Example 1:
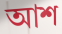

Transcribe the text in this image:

আশ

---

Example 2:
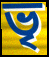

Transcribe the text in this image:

ভৃ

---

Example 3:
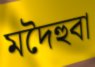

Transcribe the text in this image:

মদৈহুবা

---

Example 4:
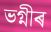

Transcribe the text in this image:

ভগ্নীৰ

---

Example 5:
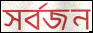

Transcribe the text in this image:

সৰ্বজন